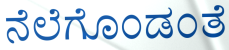
ನೆಲೆಗೊಂಡಂತೆ